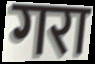
गरा